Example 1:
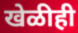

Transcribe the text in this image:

खेळीही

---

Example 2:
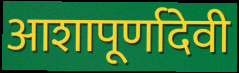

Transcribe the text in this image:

आशापूर्णादेवी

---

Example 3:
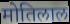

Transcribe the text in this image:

मोतिलाल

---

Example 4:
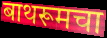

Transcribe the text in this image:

बाथरूमचा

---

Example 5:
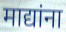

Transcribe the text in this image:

माद्यांना